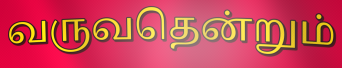
வருவதென்றும்